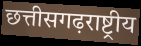
छत्तीसगढ़राष्ट्रीय